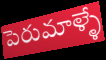
పెరుమాళ్ళే